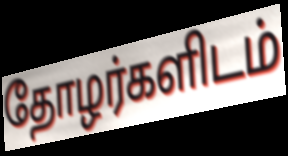
தோழர்களிடம்